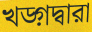
খড়্গদ্বারা